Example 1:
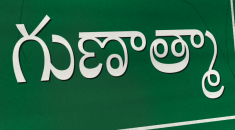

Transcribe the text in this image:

గుణాత్మా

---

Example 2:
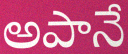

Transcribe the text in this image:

అపానే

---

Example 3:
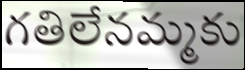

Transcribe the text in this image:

గతిలేనమ్మకు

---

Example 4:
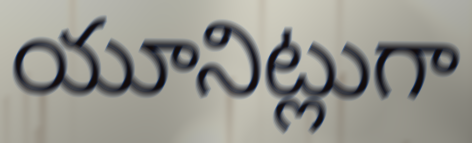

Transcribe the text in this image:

యూనిట్లుగా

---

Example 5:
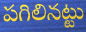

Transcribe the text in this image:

పగిలినట్టు